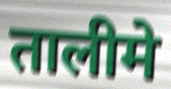
तालीमे